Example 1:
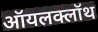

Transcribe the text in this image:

ऑयलक्लॉथ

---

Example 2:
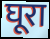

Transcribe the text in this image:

घूरा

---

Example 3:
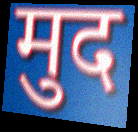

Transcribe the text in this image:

मुद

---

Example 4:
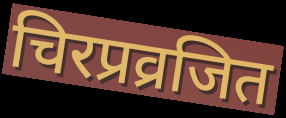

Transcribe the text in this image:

चिरप्रव्रजित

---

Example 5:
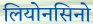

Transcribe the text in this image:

लियोनसिनो